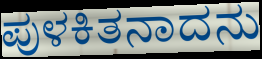
ಪುಳಕಿತನಾದನು